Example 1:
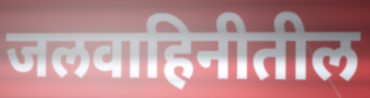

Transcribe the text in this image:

जलवाहिनीतील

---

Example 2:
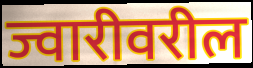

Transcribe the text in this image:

ज्वारीवरील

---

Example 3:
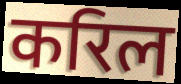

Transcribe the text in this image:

करिल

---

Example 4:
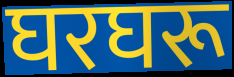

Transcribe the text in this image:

घरघरू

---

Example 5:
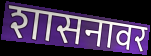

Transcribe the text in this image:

शासनावर